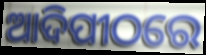
ଆଦିପୀଠରେ